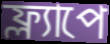
ফ্ল্যাপে